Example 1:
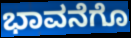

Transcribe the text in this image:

ಭಾವನೆಗೊ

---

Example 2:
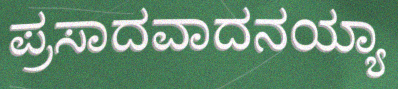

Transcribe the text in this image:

ಪ್ರಸಾದವಾದನಯ್ಯಾ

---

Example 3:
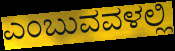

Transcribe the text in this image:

ಎಂಬುವವಳಲ್ಲಿ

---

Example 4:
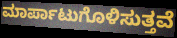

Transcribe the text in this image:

ಮಾರ್ಪಾಟುಗೊಳಿಸುತ್ತವೆ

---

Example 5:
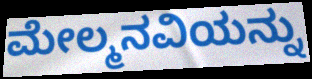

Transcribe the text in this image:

ಮೇಲ್ಮನವಿಯನ್ನು